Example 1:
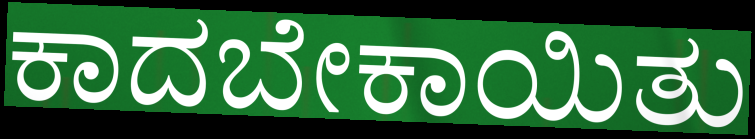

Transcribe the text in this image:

ಕಾದಬೇಕಾಯಿತು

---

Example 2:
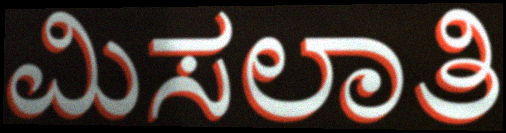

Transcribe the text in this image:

ಮಿಸಲಾತಿ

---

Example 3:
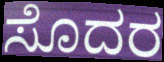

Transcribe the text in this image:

ಸೊದರ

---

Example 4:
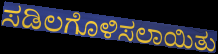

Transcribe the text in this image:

ಸಡಿಲಗೊಳಿಸಲಾಯಿತು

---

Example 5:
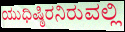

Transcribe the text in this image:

ಯುಧಿಷ್ಠಿರನಿರುವಲ್ಲಿ